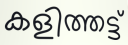
കളിത്തട്ട്